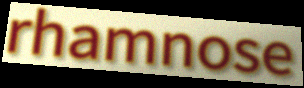
rhamnose